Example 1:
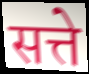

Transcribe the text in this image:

सत्ते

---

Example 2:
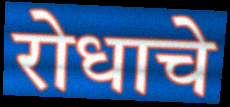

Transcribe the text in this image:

रोधाचे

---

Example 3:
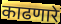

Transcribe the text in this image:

काढणारे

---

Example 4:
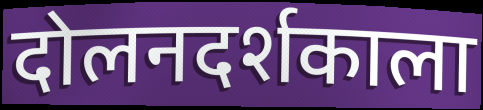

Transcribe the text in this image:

दोलनदर्शकाला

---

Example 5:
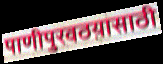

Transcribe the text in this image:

पाणीपुरवठय़ासाठी